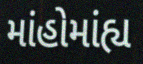
માંહોમાંહ્ય